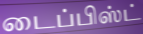
டைப்பிஸ்ட்